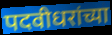
पदवीधरांच्या